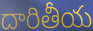
దారితీయ